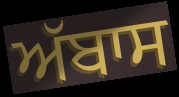
ਅੱਬਾਸ